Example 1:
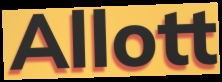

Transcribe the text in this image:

Allott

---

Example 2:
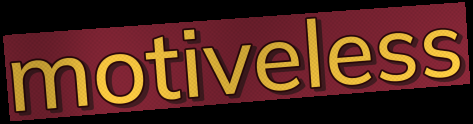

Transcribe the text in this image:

motiveless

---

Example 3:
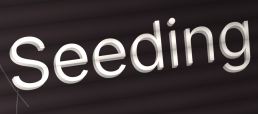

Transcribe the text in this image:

Seeding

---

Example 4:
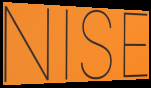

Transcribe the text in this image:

NISE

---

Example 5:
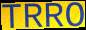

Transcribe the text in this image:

TRRO